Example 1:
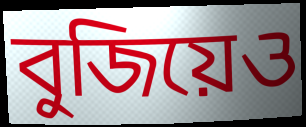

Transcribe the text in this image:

বুজিয়েও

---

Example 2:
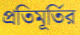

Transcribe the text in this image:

প্রতিমূর্তির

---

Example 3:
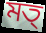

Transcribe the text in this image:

মত্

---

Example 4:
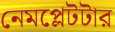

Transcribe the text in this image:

নেমপ্লেটটার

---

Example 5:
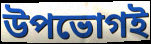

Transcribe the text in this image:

উপভোগই